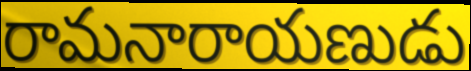
రామనారాయణుడు